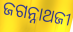
ଜଗନ୍ନାଥଜୀ